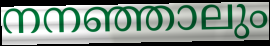
നനഞ്ഞാലും